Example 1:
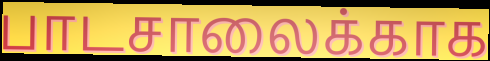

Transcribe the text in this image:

பாடசாலைக்காக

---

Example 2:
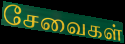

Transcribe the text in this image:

சேவைகள்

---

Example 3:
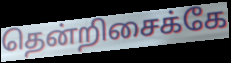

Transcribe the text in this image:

தென்றிசைக்கே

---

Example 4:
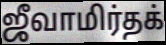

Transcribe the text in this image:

ஜீவாமிர்தக்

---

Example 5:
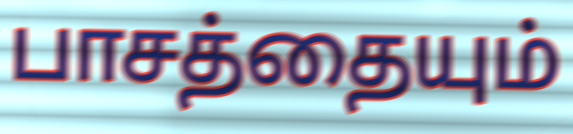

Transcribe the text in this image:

பாசத்தையும்